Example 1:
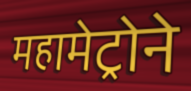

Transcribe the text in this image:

महामेट्रोने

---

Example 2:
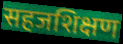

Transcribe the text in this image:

सहजशिक्षण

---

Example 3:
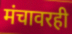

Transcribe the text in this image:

मंचावरही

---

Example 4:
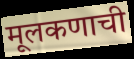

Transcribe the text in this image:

मूलकणाची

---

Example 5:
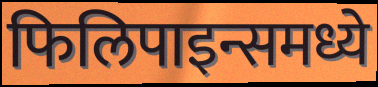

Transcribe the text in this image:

फिलिपाइन्समध्ये